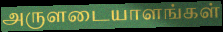
அருளடையாளங்கள்